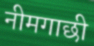
नीमगाछी